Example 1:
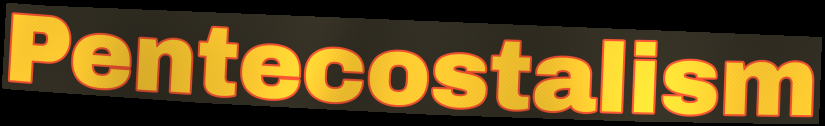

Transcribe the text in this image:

Pentecostalism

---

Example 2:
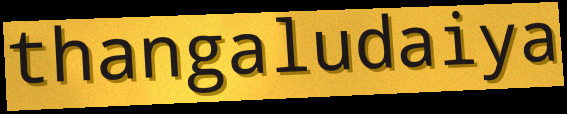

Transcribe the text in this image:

thangaludaiya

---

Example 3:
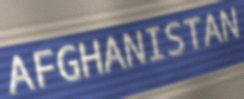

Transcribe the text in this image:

AFGHANISTAN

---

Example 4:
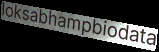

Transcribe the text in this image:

loksabhampbiodata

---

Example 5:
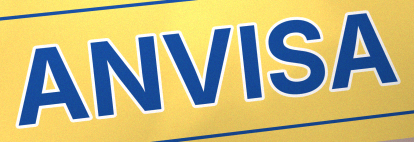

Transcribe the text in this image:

ANVISA